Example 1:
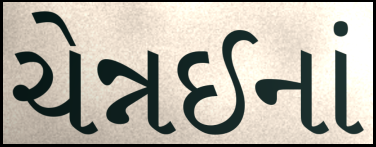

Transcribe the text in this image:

ચેન્નઈનાં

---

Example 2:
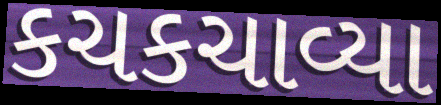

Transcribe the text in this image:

કચકચાવ્યા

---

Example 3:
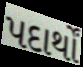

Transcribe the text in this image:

પદાર્થોં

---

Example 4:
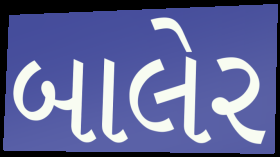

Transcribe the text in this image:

બાલેર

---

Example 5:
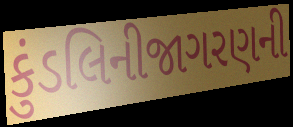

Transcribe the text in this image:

કુંડલિનીજાગરણની